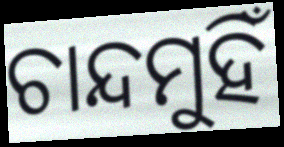
ଚାନ୍ଦମୁହିଁ